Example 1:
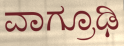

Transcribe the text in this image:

ವಾಗ್ರೂಢಿ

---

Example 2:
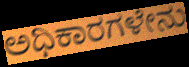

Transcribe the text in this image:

ಅಧಿಕಾರಗಳೇನು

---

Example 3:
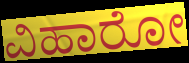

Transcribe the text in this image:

ವಿಹಾರೋ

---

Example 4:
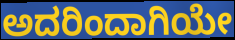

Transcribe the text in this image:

ಅದರಿಂದಾಗಿಯೇ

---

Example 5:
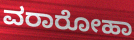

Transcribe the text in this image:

ವರಾರೋಹಾ